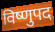
विष्‍णुपद